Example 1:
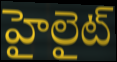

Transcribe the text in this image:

హైలైట్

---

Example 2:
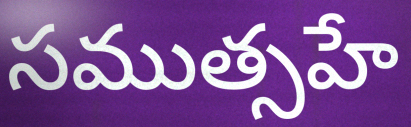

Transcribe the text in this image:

సముత్సహే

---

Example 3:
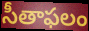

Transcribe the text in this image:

సీతాఫలం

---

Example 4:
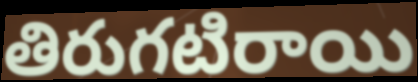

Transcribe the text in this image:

తిరుగటిరాయి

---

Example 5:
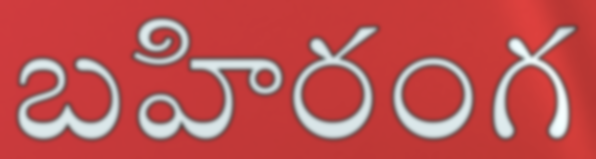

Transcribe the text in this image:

బహిరంగ